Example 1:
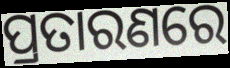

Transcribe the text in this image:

ପ୍ରତାରଣରେ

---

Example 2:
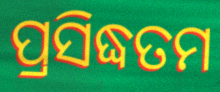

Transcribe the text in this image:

ପ୍ରସିଦ୍ଧତମ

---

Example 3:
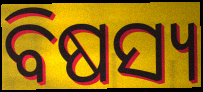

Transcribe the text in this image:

ବିଷସ୍ୟ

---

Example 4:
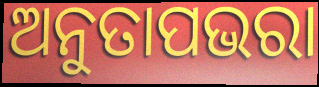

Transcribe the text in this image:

ଅନୁତାପଭରା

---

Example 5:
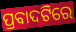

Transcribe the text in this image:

ପ୍ରବାଦଟିରେ